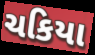
ચકિયા